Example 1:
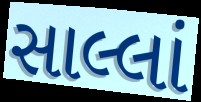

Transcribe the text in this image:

સાલ્લાં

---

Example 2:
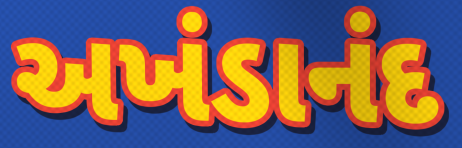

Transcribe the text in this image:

અખંડાનંદ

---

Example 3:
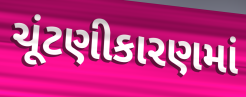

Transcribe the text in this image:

ચૂંટણીકારણમાં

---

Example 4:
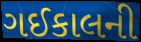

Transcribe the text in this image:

ગઈકાલની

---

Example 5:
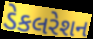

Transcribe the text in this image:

ડેકલરેશન